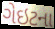
ગેઇટના